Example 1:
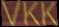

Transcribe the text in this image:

VKK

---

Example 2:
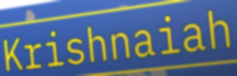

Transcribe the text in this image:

Krishnaiah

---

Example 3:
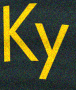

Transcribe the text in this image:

Ky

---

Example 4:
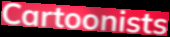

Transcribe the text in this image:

Cartoonists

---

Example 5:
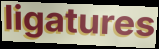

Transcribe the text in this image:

ligatures